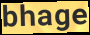
bhage